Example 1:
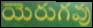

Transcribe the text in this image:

యెరుగవు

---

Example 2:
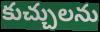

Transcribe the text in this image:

కుచ్చులను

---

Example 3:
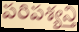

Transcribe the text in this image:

పరిపశ్యన్తి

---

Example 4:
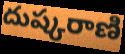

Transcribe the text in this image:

దుష్కరాణి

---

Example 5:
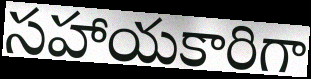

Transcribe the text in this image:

సహాయకారిగా